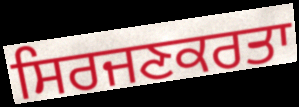
ਸਿਰਜਣਕਰਤਾ